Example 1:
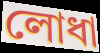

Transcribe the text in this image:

লোধা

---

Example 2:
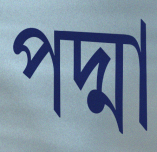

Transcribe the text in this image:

পদ্মা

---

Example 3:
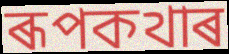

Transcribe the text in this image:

ৰূপকথাৰ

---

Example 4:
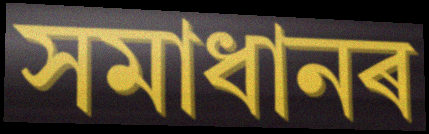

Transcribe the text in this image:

সমাধানৰ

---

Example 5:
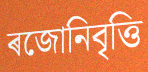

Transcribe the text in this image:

ৰজোনিবৃত্তি